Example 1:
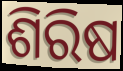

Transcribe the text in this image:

ଶିରିଷ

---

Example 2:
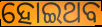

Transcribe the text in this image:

ହୋଇଥବ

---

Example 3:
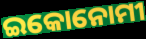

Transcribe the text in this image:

ଇକୋନୋମୀ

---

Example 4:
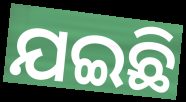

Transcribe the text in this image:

ଯଇଛି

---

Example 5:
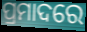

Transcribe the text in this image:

ପ୍ରମାଦରେ